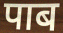
पाब